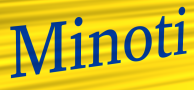
Minoti